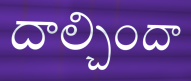
దాల్చిందా